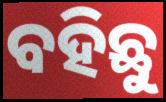
ବହିଛୁ